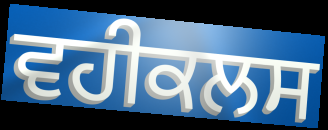
ਵਹੀਕਲਸ